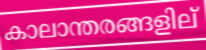
കാലാന്തരങ്ങളില്